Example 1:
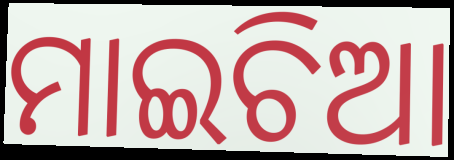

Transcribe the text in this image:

ମାଇଚିଆ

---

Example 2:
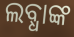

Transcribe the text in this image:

ଲବ୍ଧାଙ୍କ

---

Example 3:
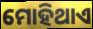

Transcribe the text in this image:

ମୋହିଥାଏ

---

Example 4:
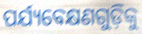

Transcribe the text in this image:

ପର୍ଯ୍ୟବେକ୍ଷଣଗୁଡ଼ିକୁ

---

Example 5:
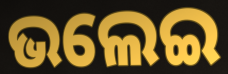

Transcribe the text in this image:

ଭଲେଇ